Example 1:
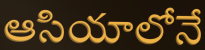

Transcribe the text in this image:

ఆసియాలోనే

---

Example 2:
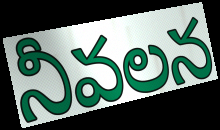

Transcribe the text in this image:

నీవలన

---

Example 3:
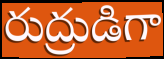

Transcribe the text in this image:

రుద్రుడిగా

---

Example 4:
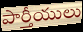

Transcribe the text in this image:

పార్తీయులు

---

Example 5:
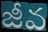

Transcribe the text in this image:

జీవ